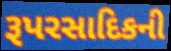
રૂપરસાદિકની